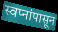
स्वप्नांपासून